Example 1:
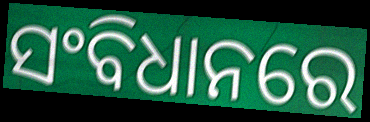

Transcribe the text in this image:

ସଂବିଧାନରେ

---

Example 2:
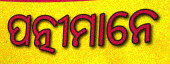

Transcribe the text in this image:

ପତ୍ନୀମାନେ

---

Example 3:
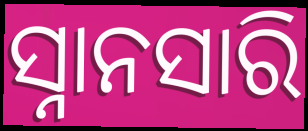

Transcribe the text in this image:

ସ୍ନାନସାରି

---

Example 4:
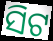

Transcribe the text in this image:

ସିଟ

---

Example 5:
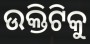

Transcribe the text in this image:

ଉକ୍ତିଟିକୁ